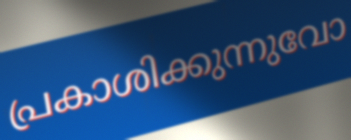
പ്രകാശിക്കുന്നുവോ